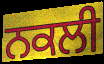
ਨਕਲੀ